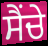
ਸੈਂਚੇ